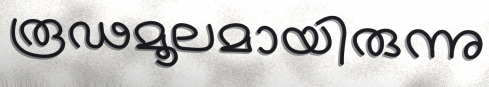
രൂഢമൂലമായിരുന്നു